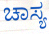
ಚಾಸ್ಯ